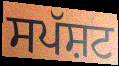
ਸਪੱਸ਼ਟ